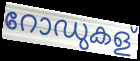
റോഡുകള്